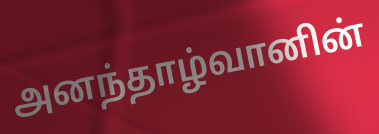
அனந்தாழ்வானின்